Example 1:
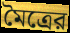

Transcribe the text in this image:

মৈত্রের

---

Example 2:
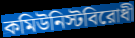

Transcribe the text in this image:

কমিউনিস্টবিরোধী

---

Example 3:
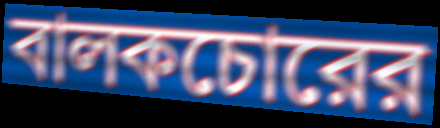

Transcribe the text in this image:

বালকচোরের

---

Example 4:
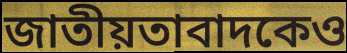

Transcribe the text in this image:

জাতীয়তাবাদকেও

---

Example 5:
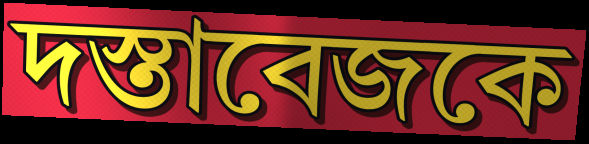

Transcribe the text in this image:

দস্তাবেজকে